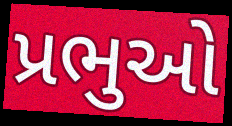
પ્રભુઓ